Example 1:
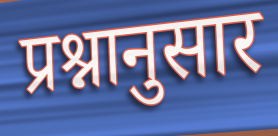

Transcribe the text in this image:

प्रश्नानुसार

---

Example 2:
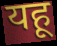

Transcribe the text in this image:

यहू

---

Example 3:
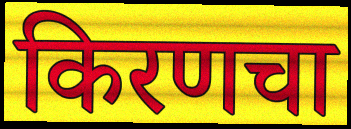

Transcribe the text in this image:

किरणचा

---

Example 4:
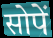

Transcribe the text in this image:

सोपें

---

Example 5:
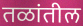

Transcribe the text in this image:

तळांतील